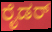
ರೈಡರ್